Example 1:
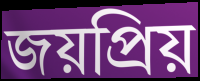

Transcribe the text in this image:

জয়প্রিয়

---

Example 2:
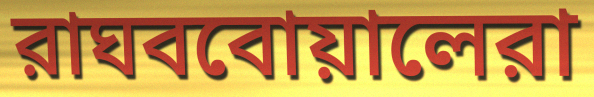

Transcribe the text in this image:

রাঘববোয়ালেরা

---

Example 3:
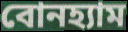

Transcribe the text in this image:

বোনহ্যাম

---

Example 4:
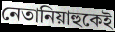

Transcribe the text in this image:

নেতানিয়াহুকেই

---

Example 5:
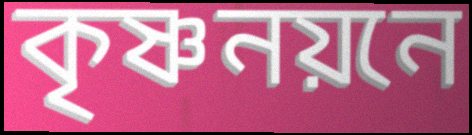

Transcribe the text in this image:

কৃষ্ণনয়নে